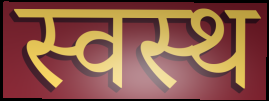
स्वस्थ